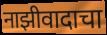
नाझीवादाचा